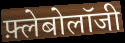
फ़्लेबोलॉजी